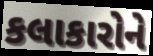
કલાકારોને